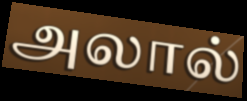
அலால்